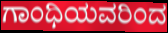
ಗಾಂಧಿಯವರಿಂದ